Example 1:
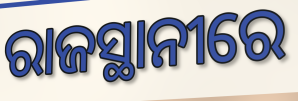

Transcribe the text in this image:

ରାଜସ୍ଥାନୀରେ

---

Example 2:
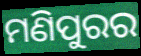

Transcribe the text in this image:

ମଣିପୁରର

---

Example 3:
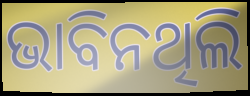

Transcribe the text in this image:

ଭାବିନଥିଲି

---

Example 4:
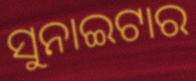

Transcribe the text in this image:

ସୁନାଇଟାର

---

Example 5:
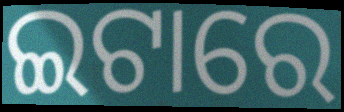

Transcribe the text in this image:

ଇଟାରେ